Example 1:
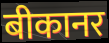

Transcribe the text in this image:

बीकानर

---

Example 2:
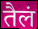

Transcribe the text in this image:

तैलं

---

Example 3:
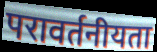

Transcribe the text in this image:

परावर्तनीयता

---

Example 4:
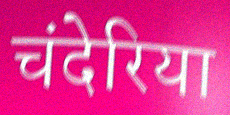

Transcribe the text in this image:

चंदेरिया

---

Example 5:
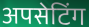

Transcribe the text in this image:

अपसेटिंग